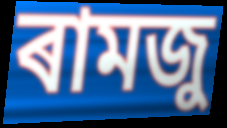
ৰামজু